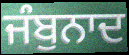
ਜੰਬੁਨਾਦ